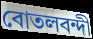
বোতলবন্দী